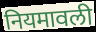
नियमावली